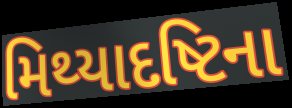
મિથ્યાદષ્ટિના